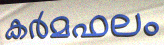
കർമഫലം